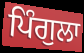
ਪਿੰਗੁਲਾ